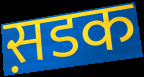
स़डक